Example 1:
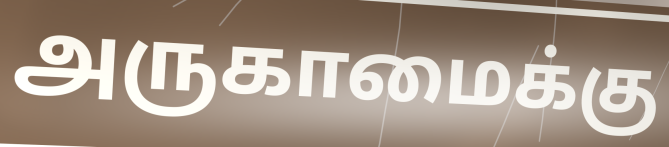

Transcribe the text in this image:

அருகாமைக்கு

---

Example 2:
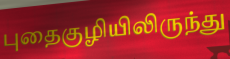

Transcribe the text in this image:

புதைகுழியிலிருந்து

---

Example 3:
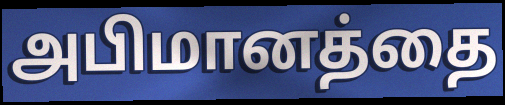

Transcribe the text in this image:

அபிமானத்தை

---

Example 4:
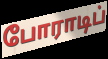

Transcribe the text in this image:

போராடிப்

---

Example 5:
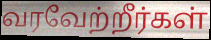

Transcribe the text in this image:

வரவேற்றீர்கள்